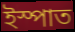
ইস্পাত